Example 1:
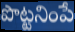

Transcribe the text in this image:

పొట్టనింపే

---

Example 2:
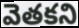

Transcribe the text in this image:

వెతకని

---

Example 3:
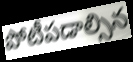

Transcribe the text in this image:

పోటీపడాల్సిన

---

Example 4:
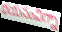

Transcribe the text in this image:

భయసంవిగ్నా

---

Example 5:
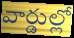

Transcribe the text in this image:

వార్డుల్లో